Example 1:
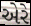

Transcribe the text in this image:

એરે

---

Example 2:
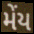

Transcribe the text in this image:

મેંય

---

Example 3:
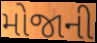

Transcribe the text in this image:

મોજાની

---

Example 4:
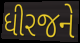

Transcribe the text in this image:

ધીરજને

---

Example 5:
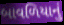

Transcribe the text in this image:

બાવળિયાનું